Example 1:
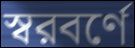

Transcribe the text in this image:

স্বরবর্ণে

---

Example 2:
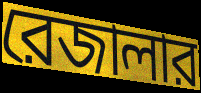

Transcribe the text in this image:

রেজালার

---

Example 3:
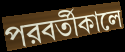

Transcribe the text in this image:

পরবর্তীকালে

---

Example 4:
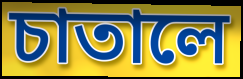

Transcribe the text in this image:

চাতালে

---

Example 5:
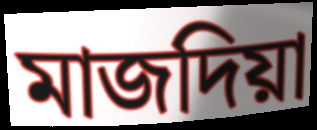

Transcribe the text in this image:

মাজদিয়া